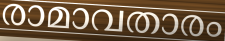
രാമാവതാരം